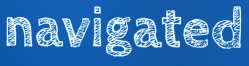
navigated